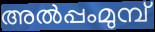
അൽപ്പംമുമ്പ്